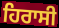
ਹਿਰਾਸੀ